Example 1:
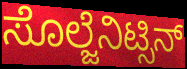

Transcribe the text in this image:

ಸೊಲ್ಜೆನಿಟ್ಸಿನ್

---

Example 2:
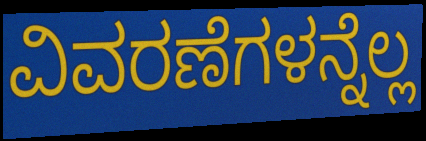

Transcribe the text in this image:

ವಿವರಣೆಗಳನ್ನೆಲ್ಲ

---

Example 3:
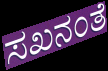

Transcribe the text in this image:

ಸಖನಂತೆ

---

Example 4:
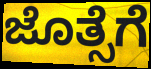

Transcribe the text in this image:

ಜೊತ್ಸೆಗೆ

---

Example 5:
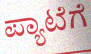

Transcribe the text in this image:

ಪ್ಯಾಟೆಗೆ